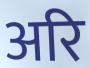
अरि